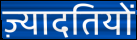
ज़्यादतियों